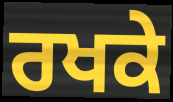
ਰਖਕੇ